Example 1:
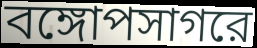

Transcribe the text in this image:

বঙ্গোপসাগরে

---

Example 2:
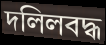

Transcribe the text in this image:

দলিলবদ্ধ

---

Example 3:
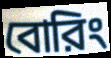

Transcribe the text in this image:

বোরিং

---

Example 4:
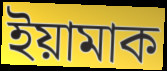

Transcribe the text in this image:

ইয়ামাক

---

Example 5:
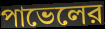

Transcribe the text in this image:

পাভেলের